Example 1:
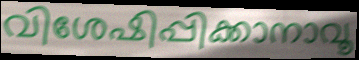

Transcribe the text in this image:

വിശേഷിപ്പിക്കാനാവൂ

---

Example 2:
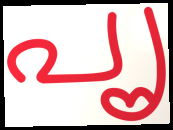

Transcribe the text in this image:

പൄ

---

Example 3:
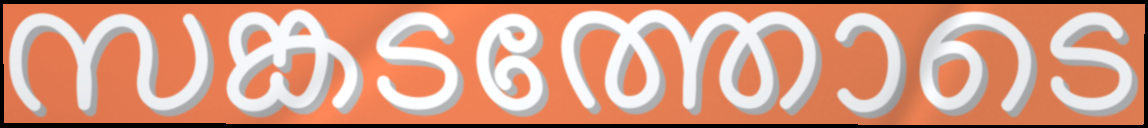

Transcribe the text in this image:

സങ്കടത്തോടെ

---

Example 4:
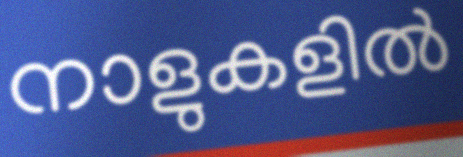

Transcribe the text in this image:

നാളുകളിൽ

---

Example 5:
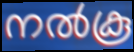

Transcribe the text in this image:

നൽകൂ